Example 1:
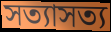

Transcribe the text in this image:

সত্যাসত্য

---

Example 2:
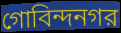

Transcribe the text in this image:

গোবিন্দনগর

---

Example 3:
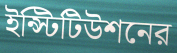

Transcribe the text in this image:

ইন্স্টিটিউশনের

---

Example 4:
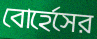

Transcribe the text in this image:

বোর্হেসের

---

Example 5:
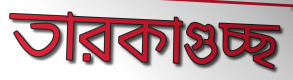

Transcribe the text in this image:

তারকাগুচ্ছ